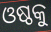
ଓଷ୍ଠକୁ